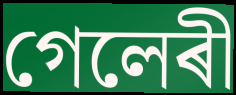
গেলেৰী